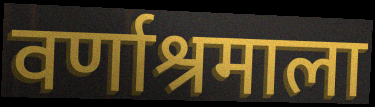
वर्णाश्रमाला